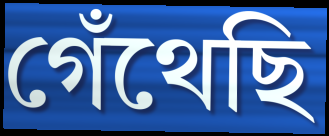
গেঁথেছি